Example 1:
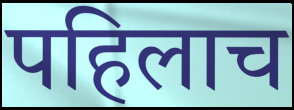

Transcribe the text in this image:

पहिलाच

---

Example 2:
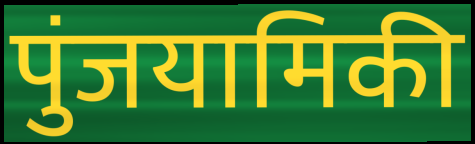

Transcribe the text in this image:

पुंजयामिकी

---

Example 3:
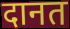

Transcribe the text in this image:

दानत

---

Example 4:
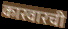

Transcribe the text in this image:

कारवारची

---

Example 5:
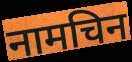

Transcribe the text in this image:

नामचिन